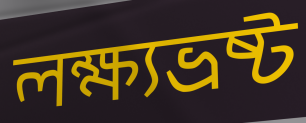
লক্ষ্যভ্রষ্ট